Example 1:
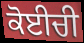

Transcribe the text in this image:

ਕੋਈਚੀ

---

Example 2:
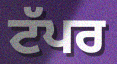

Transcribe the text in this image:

ਟੱਪਰ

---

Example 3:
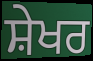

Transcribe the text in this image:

ਸ਼ੇਖਰ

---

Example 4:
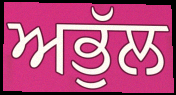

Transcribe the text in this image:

ਅਭੁੱਲ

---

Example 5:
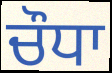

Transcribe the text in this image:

ਚੌਧਾ